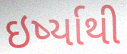
ઇર્ષ્યાથી